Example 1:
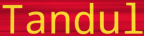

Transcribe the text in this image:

Tandul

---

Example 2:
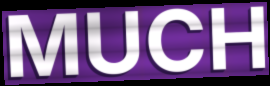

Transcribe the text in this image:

MUCH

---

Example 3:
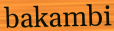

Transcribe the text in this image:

bakambi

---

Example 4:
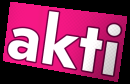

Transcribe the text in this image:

akti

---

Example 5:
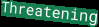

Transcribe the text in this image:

Threatening